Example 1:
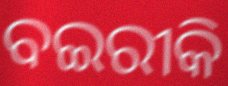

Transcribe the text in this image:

ବଇରୀକି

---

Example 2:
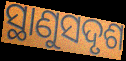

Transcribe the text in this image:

ସ୍ଥାଣୁସଦୃଶ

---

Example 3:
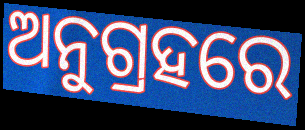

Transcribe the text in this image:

ଅନୁଗ୍ରହରେ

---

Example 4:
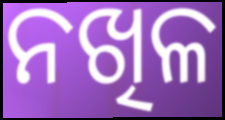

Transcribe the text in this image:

ନଖିଳ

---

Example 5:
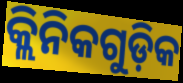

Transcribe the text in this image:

କ୍ଲିନିକଗୁଡ଼ିକ